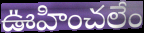
ఊహించలేం